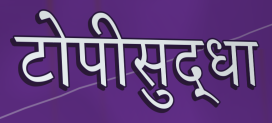
टोपीसुद्धा